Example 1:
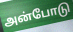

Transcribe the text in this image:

அன்போடு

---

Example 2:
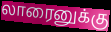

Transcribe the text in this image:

லாரைனுக்கு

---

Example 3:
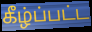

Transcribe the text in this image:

கீழ்ப்பட்ட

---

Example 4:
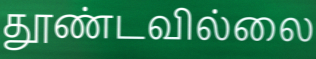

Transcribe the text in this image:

தூண்டவில்லை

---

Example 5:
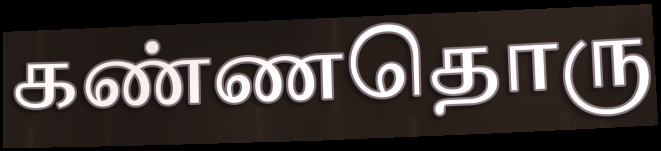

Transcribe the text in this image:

கண்ணதொரு